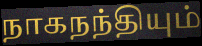
நாகநந்தியும்